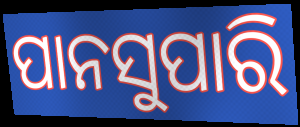
ପାନସୁପାରି